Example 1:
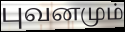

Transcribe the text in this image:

புவனமும்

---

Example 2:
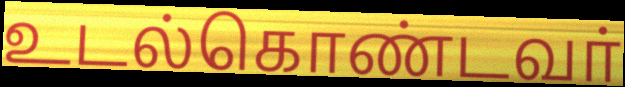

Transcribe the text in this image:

உடல்கொண்டவர்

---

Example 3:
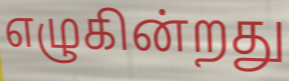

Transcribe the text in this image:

எழுகின்றது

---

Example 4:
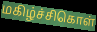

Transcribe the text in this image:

மகிழ்ச்சிகொள்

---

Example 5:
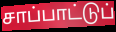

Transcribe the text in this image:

சாப்பாட்டுப்